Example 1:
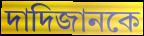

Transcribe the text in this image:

দাদিজানকে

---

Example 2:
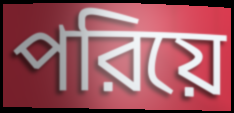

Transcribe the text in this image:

পরিয়ে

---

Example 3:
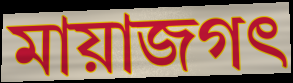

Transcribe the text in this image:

মায়াজগৎ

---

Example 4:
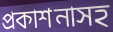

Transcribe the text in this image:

প্রকাশনাসহ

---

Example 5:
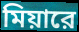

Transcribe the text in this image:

মিয়ারে